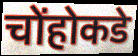
चोंहोकडे